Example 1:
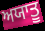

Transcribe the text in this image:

ਅਯਾਤੂ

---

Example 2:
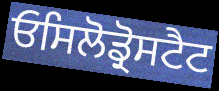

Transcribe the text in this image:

ਓਸਿਲੋਡ੍ਰੋਸਟੈਟ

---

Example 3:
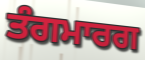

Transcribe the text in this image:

ਤੰਗਮਾਰਗ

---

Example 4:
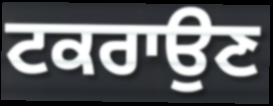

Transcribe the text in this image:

ਟਕਰਾਉਣ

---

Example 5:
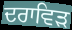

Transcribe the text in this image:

ਦਰਾਵਿੜ